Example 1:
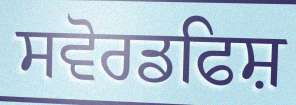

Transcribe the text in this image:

ਸਵੋਰਡਫਿਸ਼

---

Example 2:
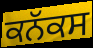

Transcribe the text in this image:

ਕਨੱਕਸ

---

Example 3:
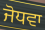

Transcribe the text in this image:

ਜੋਧਵਾ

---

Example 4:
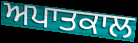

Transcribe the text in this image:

ਅਪਾਤਕਾਲ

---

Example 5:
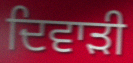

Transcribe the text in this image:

ਦਿਵਾੜੀ